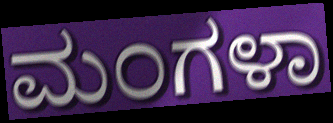
ಮಂಗಳಾ